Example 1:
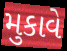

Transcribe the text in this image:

મુકાવે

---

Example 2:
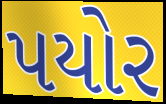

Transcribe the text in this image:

પયોર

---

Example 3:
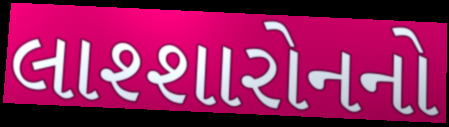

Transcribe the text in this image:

લાશ્શારોનનો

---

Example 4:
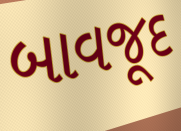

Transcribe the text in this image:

બાવજૂદ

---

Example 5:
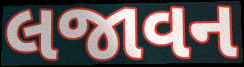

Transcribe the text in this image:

લજાવન